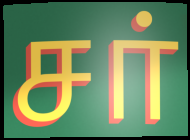
சர்